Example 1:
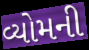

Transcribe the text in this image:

વ્યોમની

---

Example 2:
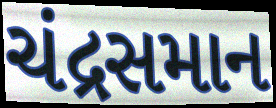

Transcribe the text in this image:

ચંદ્રસમાન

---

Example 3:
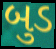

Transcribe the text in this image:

બુડ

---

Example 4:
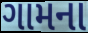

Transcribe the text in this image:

ગામના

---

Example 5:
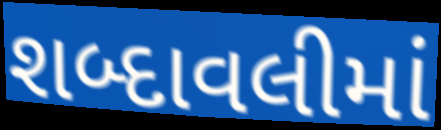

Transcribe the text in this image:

શબ્દાવલીમાં